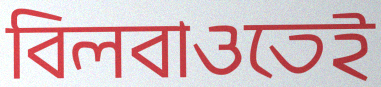
বিলবাওতেই